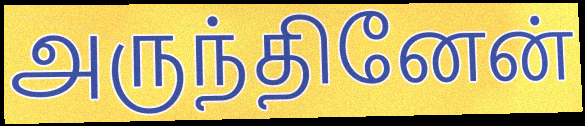
அருந்தினேன்